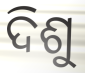
ଦିଶୁ